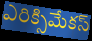
ఎరిక్సిమేకస్